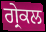
ਗ੍ਰੇਕਲ